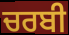
ਚਰਬੀ